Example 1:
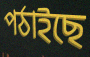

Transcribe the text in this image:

পঠাইছে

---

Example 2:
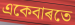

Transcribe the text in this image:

একেবাৰতে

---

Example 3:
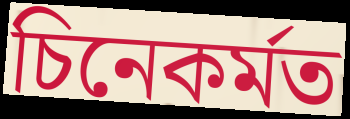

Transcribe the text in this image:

চিনেকৰ্মত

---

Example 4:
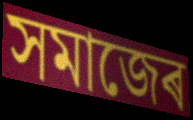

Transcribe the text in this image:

সমাজেৰ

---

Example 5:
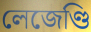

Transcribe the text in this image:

লেজেণ্ডি